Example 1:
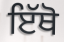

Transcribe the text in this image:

ਇੱਥੋ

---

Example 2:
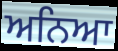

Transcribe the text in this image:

ਅਨਿਆ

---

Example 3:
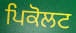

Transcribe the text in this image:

ਪਿਕੋਲਟ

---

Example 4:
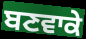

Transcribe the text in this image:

ਬਣਵਾਕੇ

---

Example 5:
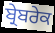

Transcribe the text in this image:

ਬ੍ਰੇਬਰੇਕ